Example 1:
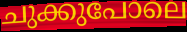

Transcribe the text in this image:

ചുക്കുപോലെ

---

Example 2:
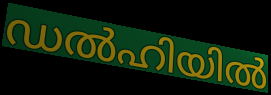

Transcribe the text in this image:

ഡൽഹിയിൽ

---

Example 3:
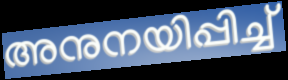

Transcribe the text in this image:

അനുനയിപ്പിച്ച്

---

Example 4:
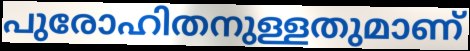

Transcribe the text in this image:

പുരോഹിതനുള്ളതുമാണ്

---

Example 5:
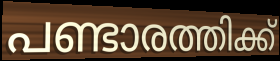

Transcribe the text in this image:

പണ്ടാരത്തിക്ക്